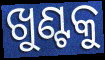
ଖୁଣ୍ଟକୁ